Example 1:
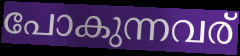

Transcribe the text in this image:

പോകുന്നവര്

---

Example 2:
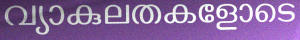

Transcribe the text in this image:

വ്യാകുലതകളോടെ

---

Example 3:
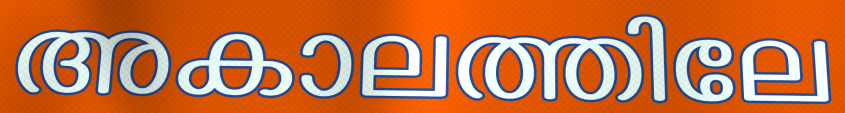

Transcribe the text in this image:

അകാലത്തിലേ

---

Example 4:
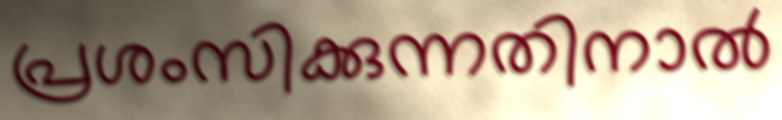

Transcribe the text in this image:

പ്രശംസിക്കുന്നതിനാൽ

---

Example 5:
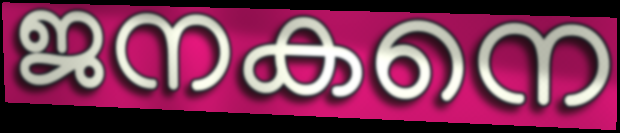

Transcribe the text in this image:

ജനകനെ